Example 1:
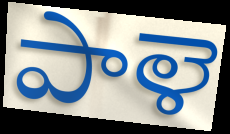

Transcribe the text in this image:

పాళె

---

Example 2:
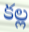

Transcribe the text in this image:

కల్ల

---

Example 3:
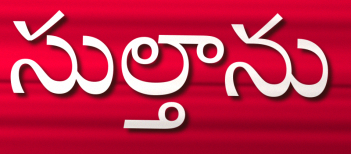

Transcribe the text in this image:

సుల్తాను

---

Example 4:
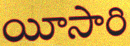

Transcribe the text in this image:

యీసారి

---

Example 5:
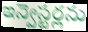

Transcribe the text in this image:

ఇన్వెస్టర్లను